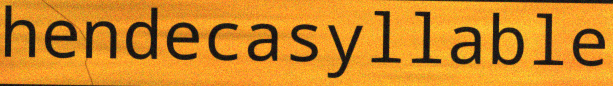
hendecasyllable